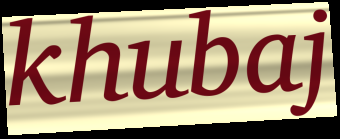
khubaj